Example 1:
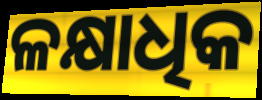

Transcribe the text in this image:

ଳକ୍ଷାଧିକ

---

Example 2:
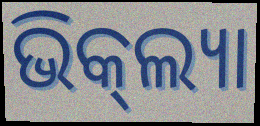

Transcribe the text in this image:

ଭିକ୍‌ଲ୍ୟା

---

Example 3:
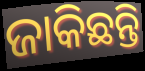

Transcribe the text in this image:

ଜାକିଛନ୍ତି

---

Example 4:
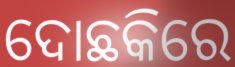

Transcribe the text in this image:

ଦୋଛକିରେ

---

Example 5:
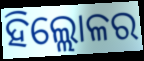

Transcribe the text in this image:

ହିଲ୍ଲୋଳର